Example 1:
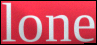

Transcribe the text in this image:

lone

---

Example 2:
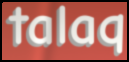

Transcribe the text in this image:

talaq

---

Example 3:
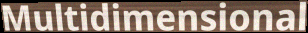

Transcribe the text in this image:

Multidimensional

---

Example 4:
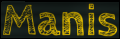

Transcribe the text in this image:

Manis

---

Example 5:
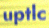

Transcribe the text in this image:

uptlc